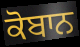
ਕੋਬਾਨ